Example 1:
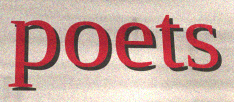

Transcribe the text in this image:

poets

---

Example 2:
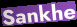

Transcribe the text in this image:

Sankhe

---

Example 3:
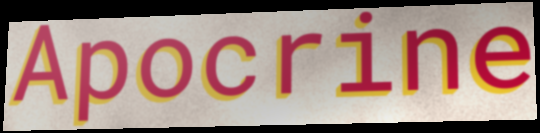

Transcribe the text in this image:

Apocrine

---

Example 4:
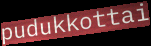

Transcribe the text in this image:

pudukkottai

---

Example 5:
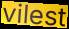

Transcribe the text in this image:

vilest